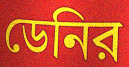
ডেনির